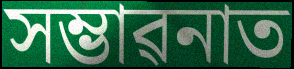
সম্ভাৱনাত